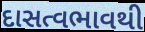
દાસત્વભાવથી